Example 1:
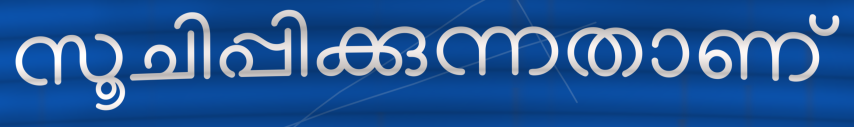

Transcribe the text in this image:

സൂചിപ്പിക്കുന്നതാണ്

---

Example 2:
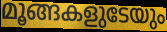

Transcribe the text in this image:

മൂങ്ങകളുടേയും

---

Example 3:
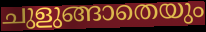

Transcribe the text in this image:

ചുളുങ്ങാതെയും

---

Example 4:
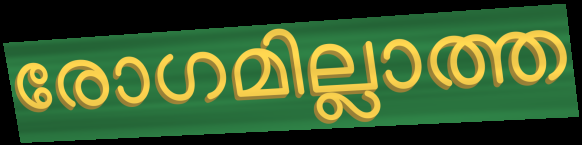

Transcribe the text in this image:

രോഗമില്ലാത്ത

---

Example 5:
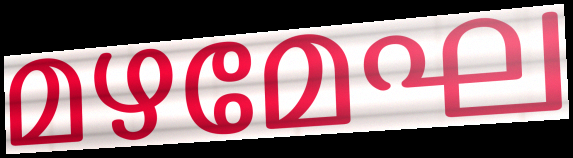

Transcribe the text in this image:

മഴമേഘ